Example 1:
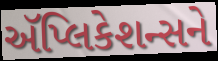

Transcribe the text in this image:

ઍપ્લિકેશન્સને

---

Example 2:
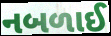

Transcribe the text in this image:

નબળાઈ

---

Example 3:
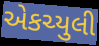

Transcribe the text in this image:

એકચ્યુલી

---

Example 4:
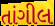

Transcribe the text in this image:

તાંગીલ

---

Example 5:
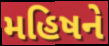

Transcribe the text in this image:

મહિષને